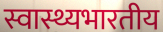
स्वास्थ्यभारतीय